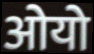
ओयो